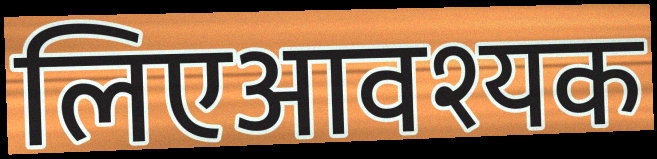
लिएआवश्यक